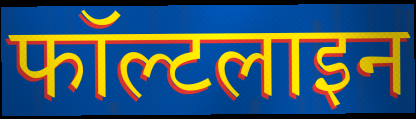
फॉल्टलाइन